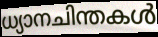
ധ്യാനചിന്തകൾ